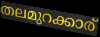
തലമുറക്കാര്